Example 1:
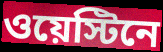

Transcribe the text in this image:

ওয়েস্টিনে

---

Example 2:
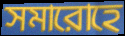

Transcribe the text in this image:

সমারোহে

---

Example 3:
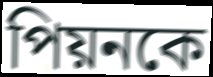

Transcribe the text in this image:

পিয়নকে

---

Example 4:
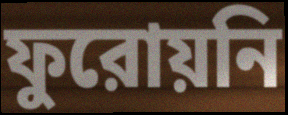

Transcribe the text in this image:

ফুরোয়নি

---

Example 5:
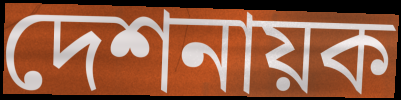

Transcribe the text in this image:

দেশনায়ক